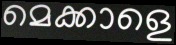
മെക്കാളെ